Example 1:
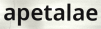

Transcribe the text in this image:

apetalae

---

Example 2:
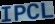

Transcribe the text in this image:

IPCL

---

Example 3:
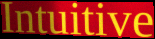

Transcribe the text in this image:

Intuitive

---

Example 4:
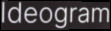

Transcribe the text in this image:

Ideogram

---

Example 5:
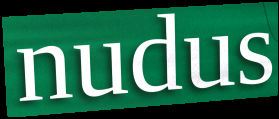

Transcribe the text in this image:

nudus